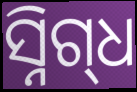
ସ୍ନିଗ୍‍ଧ